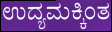
ಉದ್ಯಮಕ್ಕಿಂತ